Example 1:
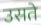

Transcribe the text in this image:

उसते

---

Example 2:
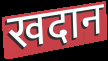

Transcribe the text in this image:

खदान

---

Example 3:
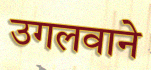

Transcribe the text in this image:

उगलवाने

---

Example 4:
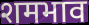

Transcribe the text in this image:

शमभाव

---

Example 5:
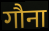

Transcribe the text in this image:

गौना